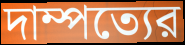
দাম্পত্যের